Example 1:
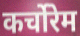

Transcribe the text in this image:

कर्चोरेम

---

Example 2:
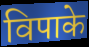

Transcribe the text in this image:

विपाके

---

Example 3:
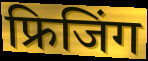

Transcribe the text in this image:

फ्रिजिंग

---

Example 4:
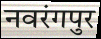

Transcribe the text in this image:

नवरंगपुर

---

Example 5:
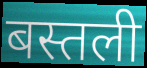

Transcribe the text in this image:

बस्तली